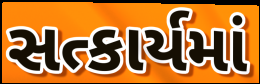
સત્કાર્યમાં